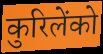
कुरिलेंको